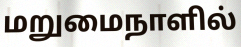
மறுமைநாளில்